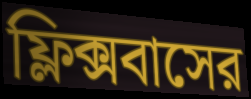
ফ্লিক্সবাসের